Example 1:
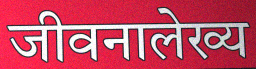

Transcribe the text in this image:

जीवनालेख्य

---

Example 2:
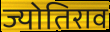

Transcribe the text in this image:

ज्‍योतिराव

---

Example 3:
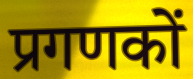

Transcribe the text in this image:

प्रगणकों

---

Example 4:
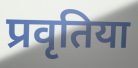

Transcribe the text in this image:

प्रवृतिया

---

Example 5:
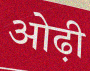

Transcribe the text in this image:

ओढ़ी